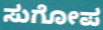
ಸುಗೋಪ